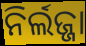
ନିର୍ଲଜ୍ଜା